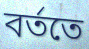
বর্ততে